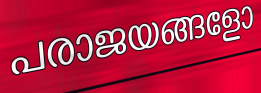
പരാജയങ്ങളോ